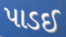
પાડઈ